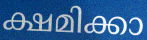
ക്ഷമിക്കാ